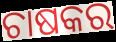
ଚାଷକର